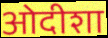
ओदीशा